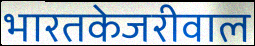
भारतकेजरीवाल